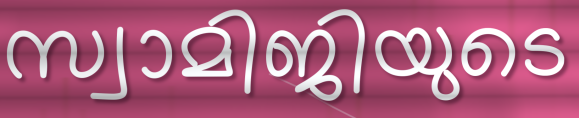
സ്വാമിജിയുടെ